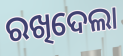
ରଖିଦେଲା